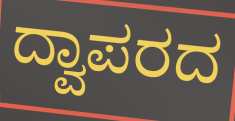
ದ್ವಾಪರದ